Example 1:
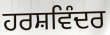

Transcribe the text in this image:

ਹਰਸ਼ਵਿੰਦਰ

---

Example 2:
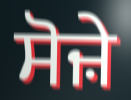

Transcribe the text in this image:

ਸੋਜ਼ੇ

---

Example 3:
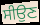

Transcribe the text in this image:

ਸੀਉਣ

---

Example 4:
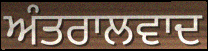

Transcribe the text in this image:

ਅੰਤਰਾਲਵਾਦ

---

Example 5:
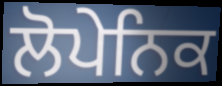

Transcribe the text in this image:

ਲੋਪੇਨਿਕ